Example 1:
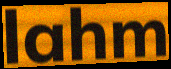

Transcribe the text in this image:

lahm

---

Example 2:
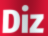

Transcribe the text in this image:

Diz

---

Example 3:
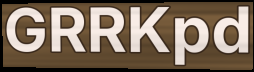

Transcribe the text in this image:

GRRKpd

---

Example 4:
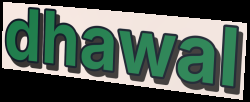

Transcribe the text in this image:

dhawal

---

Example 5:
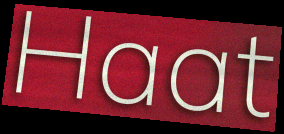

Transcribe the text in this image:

Haat